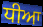
ਧੀਆ